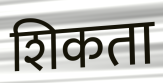
शिकता